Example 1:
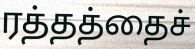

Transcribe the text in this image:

ரத்தத்தைச்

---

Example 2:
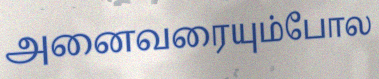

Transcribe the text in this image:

அனைவரையும்போல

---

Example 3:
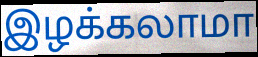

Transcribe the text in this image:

இழக்கலாமா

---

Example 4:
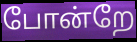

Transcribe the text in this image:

போன்றே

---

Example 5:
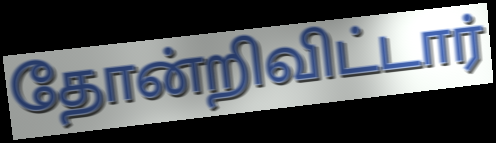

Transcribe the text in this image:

தோன்றிவிட்டார்